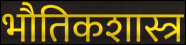
भौतिकशास्त्र